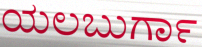
ಯಲಬುರ್ಗಾ